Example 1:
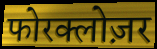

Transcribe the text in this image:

फोरक्लोज़र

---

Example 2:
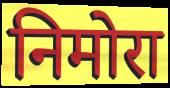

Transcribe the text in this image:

निमोरा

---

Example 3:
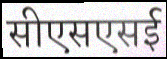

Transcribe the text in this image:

सीएसएसई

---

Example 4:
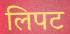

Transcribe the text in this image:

लिपट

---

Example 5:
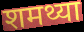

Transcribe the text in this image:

शमथ्या